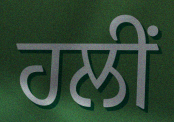
ਹਲੀਂ